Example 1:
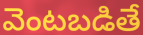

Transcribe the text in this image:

వెంటబడితే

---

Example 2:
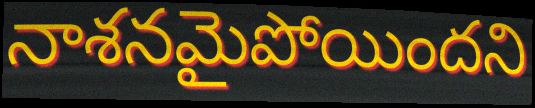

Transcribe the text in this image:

నాశనమైపోయిందని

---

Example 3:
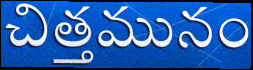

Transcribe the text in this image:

చిత్తమునం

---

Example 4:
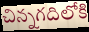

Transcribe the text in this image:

చిన్నగదిలోకి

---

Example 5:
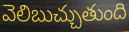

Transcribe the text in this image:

వెలిబుచ్చుతుంది